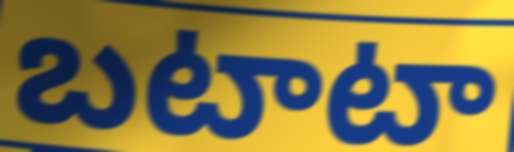
బటాటా